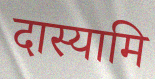
दास्यामि